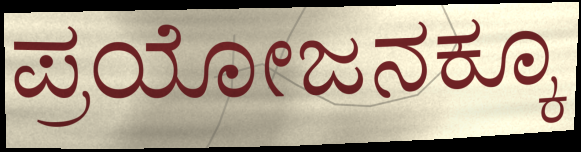
ಪ್ರಯೋಜನಕ್ಕೂ